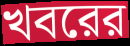
খবরের